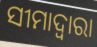
ସୀମାଦ୍ଵାରା